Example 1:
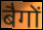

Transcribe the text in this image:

बैगों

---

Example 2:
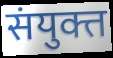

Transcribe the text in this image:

संयुक्त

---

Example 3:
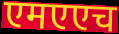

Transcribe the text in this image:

एमएएच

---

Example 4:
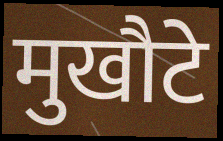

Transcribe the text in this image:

मुखौटे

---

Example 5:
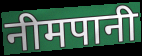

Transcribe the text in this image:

नीमपानी